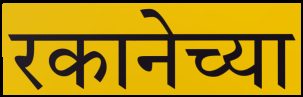
रकानेच्या